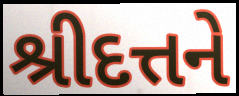
શ્રીદત્તને